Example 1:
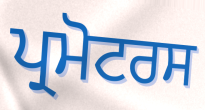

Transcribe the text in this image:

ਪ੍ਰਮੋਟਰਸ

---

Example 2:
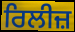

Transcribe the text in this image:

ਰਿਲੀਜ਼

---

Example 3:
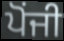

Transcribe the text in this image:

ਪੋਂਜੀ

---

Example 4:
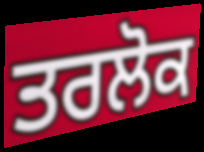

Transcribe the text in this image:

ਤਰਲੋਕ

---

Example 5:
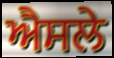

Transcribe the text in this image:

ਐਸਲੇ